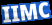
IIMC